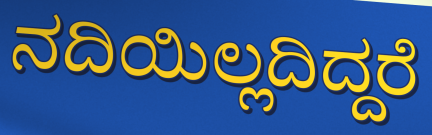
ನದಿಯಿಲ್ಲದಿದ್ದರೆ